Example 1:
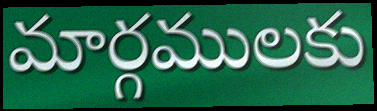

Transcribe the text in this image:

మార్గములకు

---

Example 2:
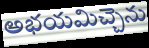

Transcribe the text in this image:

అభయమిచ్చెను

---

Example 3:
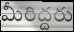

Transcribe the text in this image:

మీరిద్దరు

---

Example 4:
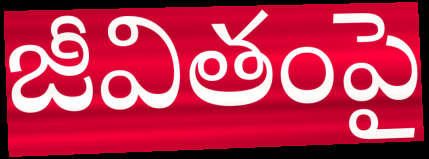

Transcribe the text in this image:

జీవితంపై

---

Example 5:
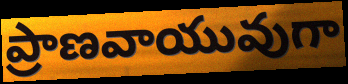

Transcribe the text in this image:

ప్రాణవాయువుగా